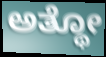
ಅತ್ಥೋ